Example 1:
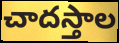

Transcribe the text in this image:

చాదస్తాల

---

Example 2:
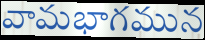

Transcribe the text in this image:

వామభాగమున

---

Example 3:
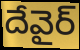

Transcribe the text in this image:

దేవైర్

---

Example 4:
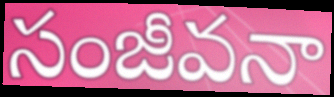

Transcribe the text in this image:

సంజీవనా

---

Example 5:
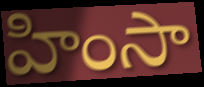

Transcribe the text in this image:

హింసా